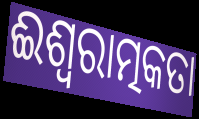
ଈଶ୍ଵରାତ୍ମକତା